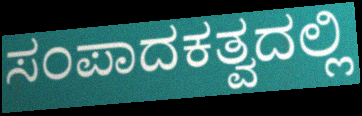
ಸಂಪಾದಕತ್ವದಲ್ಲಿ